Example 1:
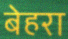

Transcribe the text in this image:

बेहरा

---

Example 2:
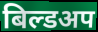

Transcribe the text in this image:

बिल्डअप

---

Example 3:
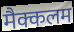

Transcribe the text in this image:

मैक्कलम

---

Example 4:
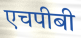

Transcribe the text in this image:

एचपीबी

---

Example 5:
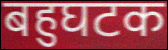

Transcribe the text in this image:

बहुघटक